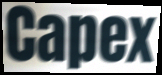
Capex